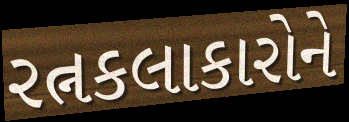
રત્નકલાકારોને